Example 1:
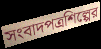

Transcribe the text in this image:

সংবাদপত্রশিল্পের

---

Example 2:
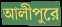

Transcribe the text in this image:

আলীপুরে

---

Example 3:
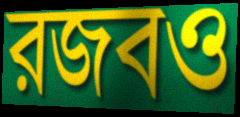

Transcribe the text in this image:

রজবও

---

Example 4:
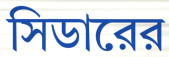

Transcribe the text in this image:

সিডারের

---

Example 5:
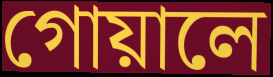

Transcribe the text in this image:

গোয়ালে